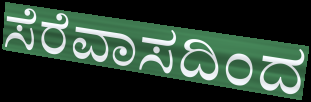
ಸೆರೆವಾಸದಿಂದ